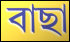
বাছা